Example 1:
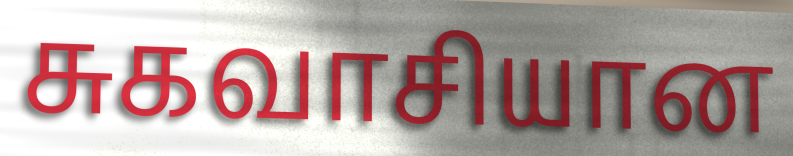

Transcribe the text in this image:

சுகவாசியான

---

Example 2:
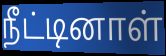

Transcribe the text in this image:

நீட்டினாள்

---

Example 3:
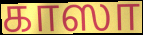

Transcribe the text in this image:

காஸா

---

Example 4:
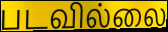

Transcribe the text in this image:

படவில்லை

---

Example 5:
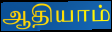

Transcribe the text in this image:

ஆதியாம்